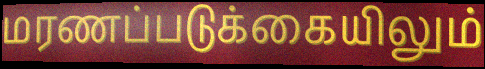
மரணப்படுக்கையிலும்